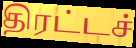
திரட்டச்